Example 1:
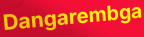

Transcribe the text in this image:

Dangarembga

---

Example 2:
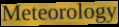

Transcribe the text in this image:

Meteorology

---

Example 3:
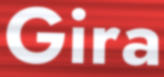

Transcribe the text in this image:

Gira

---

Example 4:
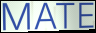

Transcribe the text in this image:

MATE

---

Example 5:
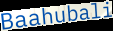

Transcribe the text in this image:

Baahubali